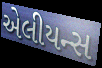
એલીયન્સ